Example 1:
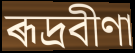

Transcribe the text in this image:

ৰূদ্ৰবীণা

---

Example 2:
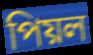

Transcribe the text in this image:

পিয়ল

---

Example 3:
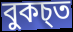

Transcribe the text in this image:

বুকচ্ত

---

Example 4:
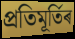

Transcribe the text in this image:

প্ৰতিমূৰ্তিৰ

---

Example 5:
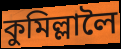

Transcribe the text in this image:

কুমিল্লালৈ